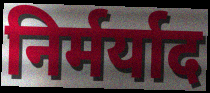
निर्मर्याद